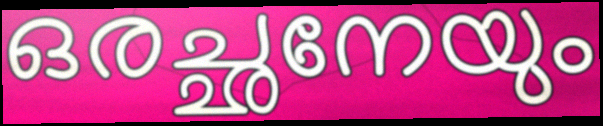
ഒരച്ഛനേയും